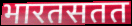
भारतसतत